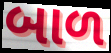
બાળ